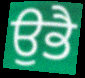
ਉਭੈ